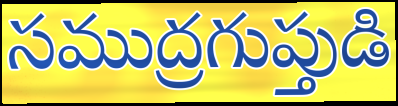
సముద్రగుప్తుడి